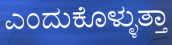
ಎಂದುಕೊಳ್ಳುತ್ತಾ